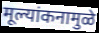
मूल्यांकनामुळे